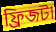
ফ্রিজটা